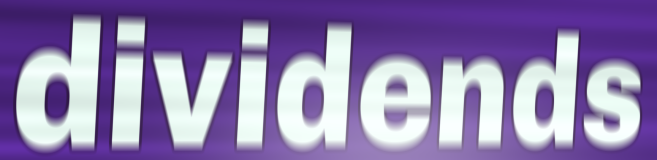
dividends